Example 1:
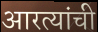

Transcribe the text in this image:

आरत्यांची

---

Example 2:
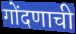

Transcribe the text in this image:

गोंदणाची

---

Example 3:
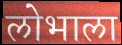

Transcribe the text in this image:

लोभाला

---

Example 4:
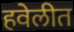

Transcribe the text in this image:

हवेलीत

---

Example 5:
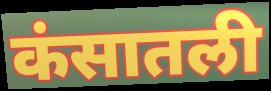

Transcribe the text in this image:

कंसातली